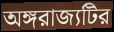
অঙ্গরাজ্যটির